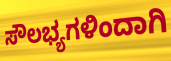
ಸೌಲಭ್ಯಗಳಿಂದಾಗಿ